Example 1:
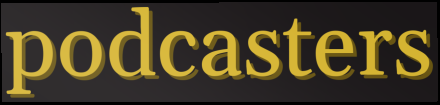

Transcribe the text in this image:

podcasters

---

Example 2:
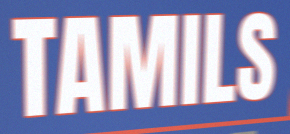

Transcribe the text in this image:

TAMILS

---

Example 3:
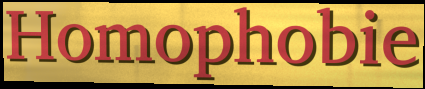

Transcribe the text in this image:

Homophobie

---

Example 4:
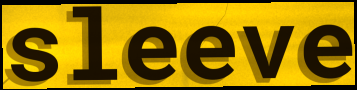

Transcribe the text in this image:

sleeve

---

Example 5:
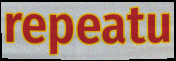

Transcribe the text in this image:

repeatu